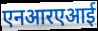
एनआरएआई